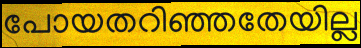
പോയതറിഞ്ഞതേയില്ല